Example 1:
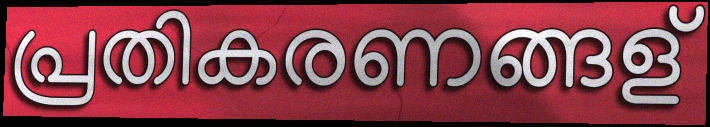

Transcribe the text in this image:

പ്രതികരണങ്ങള്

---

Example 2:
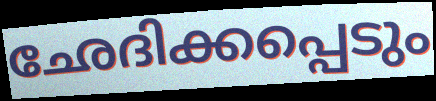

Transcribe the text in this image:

ഛേദിക്കപ്പെടും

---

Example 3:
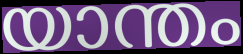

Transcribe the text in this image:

യാന്തം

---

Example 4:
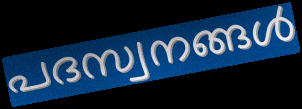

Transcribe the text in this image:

പദസ്വനങ്ങൾ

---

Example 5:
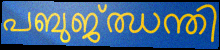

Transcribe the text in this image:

പബുജ്ഝന്തി